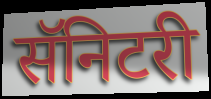
सॅनिटरी